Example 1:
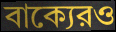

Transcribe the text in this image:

বাক্যেরও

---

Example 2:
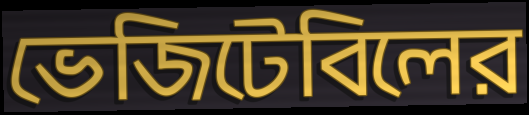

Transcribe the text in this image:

ভেজিটেবিলের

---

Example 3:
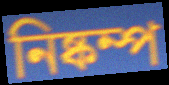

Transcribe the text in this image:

নিষ্কম্প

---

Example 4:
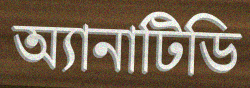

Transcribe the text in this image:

অ্যানাটিডি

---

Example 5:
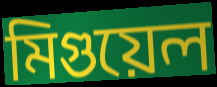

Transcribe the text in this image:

মিগুয়েল